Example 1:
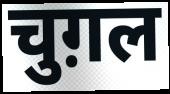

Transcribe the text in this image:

चुग़ल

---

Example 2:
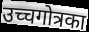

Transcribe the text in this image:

उच्चगोत्रका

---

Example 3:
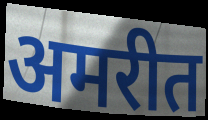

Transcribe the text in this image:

अमरीत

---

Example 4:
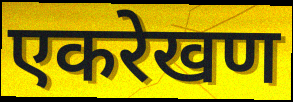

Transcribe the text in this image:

एकरेखण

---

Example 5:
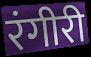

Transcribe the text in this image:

रंगीरी